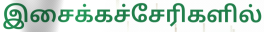
இசைக்கச்சேரிகளில்